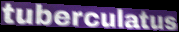
tuberculatus